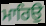
ਮਾਰਿਉ